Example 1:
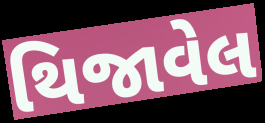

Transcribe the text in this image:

થિજાવેલ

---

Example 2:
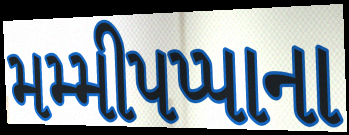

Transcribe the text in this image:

મમ્મીપપ્પાના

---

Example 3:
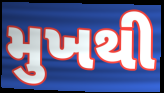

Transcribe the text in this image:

મુખથી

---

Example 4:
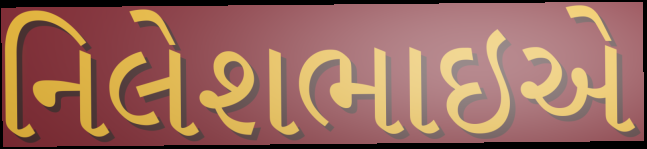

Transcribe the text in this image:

નિલેશભાઇએ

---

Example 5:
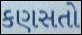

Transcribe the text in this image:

કણસતો